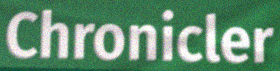
Chronicler